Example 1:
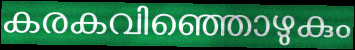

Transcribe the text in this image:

കരകവിഞ്ഞൊഴുകും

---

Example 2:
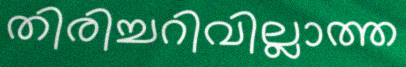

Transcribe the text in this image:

തിരിച്ചറിവില്ലാത്ത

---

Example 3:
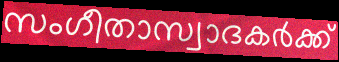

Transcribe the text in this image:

സംഗീതാസ്വാദകർക്ക്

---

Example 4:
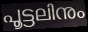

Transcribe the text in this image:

പൂട്ടലിനും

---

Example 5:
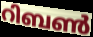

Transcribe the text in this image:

റിബൺ